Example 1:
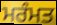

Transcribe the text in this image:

ਮਰੰਮਤ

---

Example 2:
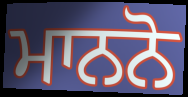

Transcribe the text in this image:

ਮਾਨਨੋ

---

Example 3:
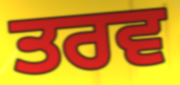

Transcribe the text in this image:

ਤਰਵ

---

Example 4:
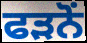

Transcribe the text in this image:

ਫੜਨੋਂ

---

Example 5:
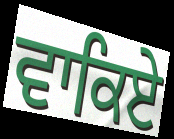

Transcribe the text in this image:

ਵਾਕਿਏ